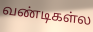
வண்டிகள்ல